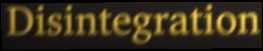
Disintegration